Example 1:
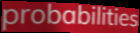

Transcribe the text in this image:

probabilities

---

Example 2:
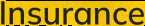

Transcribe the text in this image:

Insurance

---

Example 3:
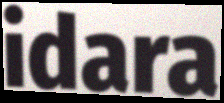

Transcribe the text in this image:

idara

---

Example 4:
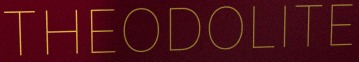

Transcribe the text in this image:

THEODOLITE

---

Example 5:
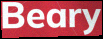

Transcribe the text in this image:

Beary